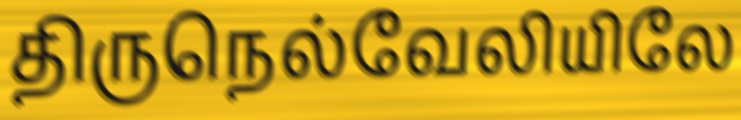
திருநெல்வேலியிலே